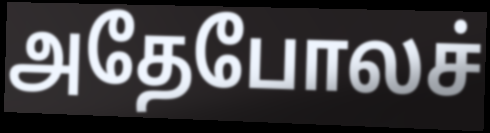
அதேபோலச்